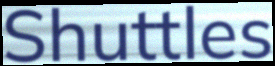
Shuttles